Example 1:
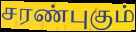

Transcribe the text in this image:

சரண்புகும்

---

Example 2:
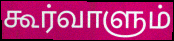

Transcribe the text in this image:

கூர்வாளும்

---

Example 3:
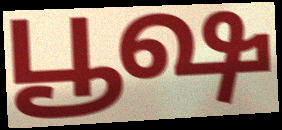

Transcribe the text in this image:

பூஷ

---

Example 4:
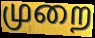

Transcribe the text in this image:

முறை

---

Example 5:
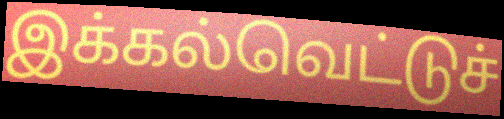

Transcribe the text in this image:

இக்கல்வெட்டுச்